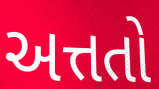
અત્તતો